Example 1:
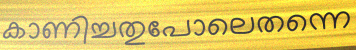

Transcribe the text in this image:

കാണിച്ചതുപോലെതന്നെ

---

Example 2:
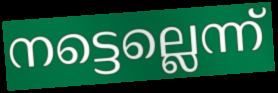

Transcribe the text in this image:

നട്ടെല്ലെന്ന്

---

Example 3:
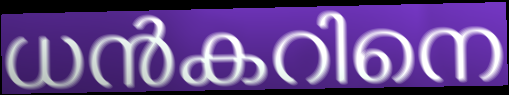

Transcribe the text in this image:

ധൻകറിനെ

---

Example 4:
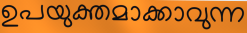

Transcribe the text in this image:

ഉപയുക്തമാക്കാവുന്ന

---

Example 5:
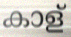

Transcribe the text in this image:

കാള്